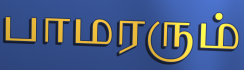
பாமரரும்